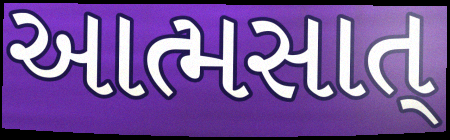
આત્મસાત્